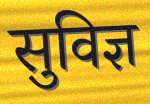
सुविज्ञ